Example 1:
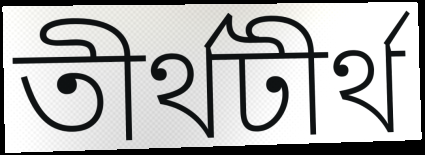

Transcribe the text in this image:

তীর্থটীর্থ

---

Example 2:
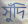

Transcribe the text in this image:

সুঁদি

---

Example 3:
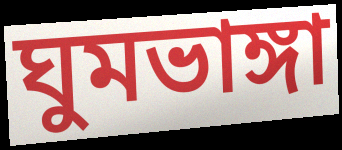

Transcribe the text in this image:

ঘুমভাঙ্গা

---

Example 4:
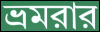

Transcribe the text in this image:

ভ্রমরার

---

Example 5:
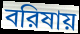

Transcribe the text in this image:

বরিষায়